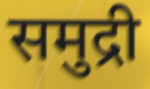
समुद्री